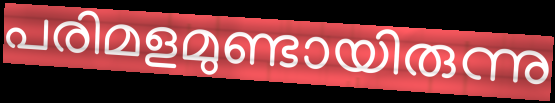
പരിമളമുണ്ടായിരുന്നു